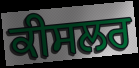
ਕੀਸਲਰ